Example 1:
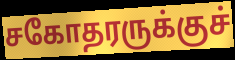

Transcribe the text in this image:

சகோதரருக்குச்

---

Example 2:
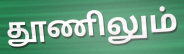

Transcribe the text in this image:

தூணிலும்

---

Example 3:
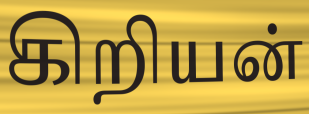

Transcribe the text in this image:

கிறியன்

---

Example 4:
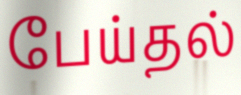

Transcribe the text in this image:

பேய்தல்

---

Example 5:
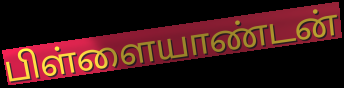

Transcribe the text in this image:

பிள்ளையாண்டன்